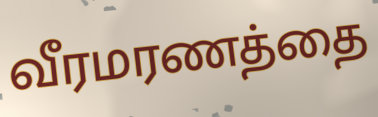
வீரமரணத்தை